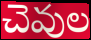
చెవుల